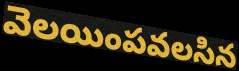
వెలయింపవలసిన